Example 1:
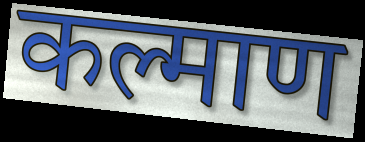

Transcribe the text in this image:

कल्माण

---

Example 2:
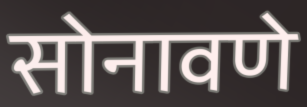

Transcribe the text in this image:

सोनावणे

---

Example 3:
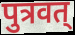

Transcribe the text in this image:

पुत्रवत्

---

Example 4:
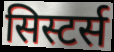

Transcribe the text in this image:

सिस्टर्स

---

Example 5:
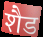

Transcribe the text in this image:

शैड